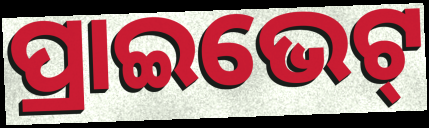
ପ୍ରାଇଭେଟ୍